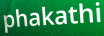
phakathi